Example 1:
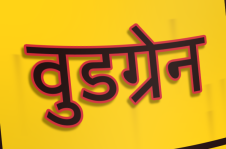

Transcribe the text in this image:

वुडग्रेन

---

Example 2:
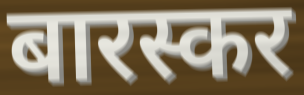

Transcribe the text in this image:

बारस्कर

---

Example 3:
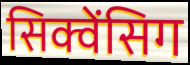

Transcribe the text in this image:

सिक्वेंसिग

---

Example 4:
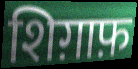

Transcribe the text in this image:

शिग़ाफ़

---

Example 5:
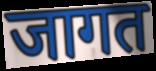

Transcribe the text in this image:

जागत